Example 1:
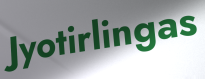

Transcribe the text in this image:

Jyotirlingas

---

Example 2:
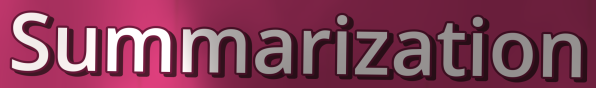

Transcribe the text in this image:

Summarization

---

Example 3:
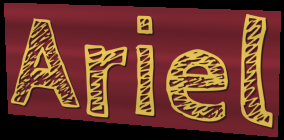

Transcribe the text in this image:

Ariel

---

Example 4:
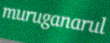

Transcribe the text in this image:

muruganarul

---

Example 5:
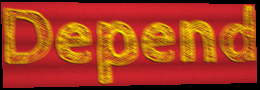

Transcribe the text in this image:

Depend